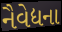
નૈવેદ્યના